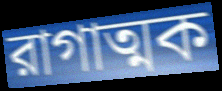
রাগাত্মক